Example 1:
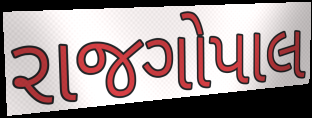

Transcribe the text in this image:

રાજગોપાલ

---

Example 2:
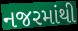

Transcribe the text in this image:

નજરમાંથી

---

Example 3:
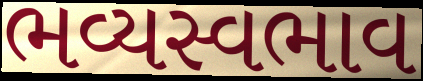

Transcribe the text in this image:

ભવ્યસ્વભાવ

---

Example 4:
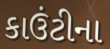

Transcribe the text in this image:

કાઉંટીના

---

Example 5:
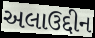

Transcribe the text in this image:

અલાઉદ્દીન